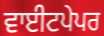
ਵਾਈਟਪੇਪਰ